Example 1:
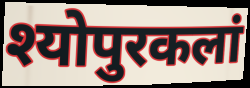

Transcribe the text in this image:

श्योपुरकलां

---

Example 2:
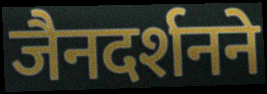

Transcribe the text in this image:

जैनदर्शनने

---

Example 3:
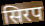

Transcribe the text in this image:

सिरप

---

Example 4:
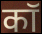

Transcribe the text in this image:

कॉ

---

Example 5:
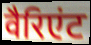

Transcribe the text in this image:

वैरिएंट